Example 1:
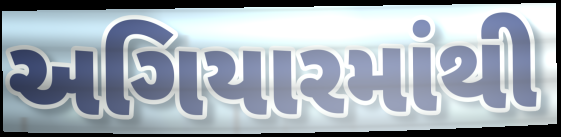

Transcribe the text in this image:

અગિયારમાંથી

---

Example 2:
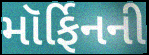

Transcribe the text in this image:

મૉર્ફિનની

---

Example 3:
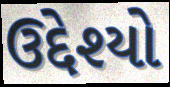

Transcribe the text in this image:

ઉદ્દેશ્યો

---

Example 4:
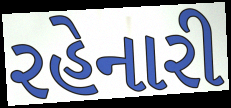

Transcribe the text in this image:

રહેનારી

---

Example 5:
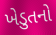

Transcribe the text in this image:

ખેડુતનો